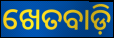
ଖେତବାଡ଼ି